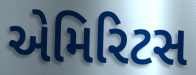
એમિરિટસ